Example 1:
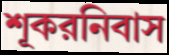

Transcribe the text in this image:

শূকরনিবাস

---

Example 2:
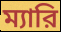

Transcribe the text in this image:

ম্যারি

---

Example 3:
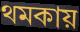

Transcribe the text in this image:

থমকায়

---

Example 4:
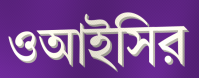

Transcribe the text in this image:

ওআইসির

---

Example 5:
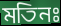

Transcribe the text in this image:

মতিনঃ